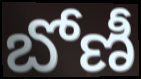
బోణీ